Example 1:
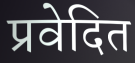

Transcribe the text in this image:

प्रवेदित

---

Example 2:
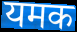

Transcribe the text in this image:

यमक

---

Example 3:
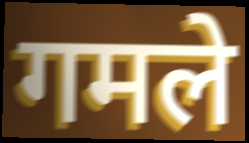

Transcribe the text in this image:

गमले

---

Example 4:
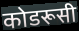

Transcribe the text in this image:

कोडरूसी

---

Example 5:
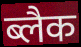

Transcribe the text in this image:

ब्‍लैक